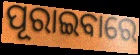
ପୂରାଇବାରେ